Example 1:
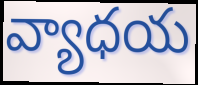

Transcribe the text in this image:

వ్యాధయ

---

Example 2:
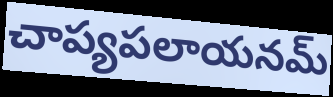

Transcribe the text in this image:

చాప్యపలాయనమ్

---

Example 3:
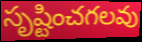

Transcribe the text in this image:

సృష్టించగలవు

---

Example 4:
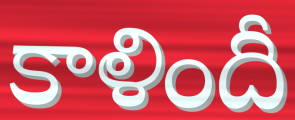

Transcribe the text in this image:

కాళిందీ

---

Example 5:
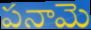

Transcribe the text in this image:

పనామె